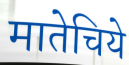
मातेचिये